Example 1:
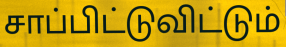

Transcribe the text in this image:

சாப்பிட்டுவிட்டும்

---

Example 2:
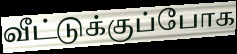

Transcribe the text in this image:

வீட்டுக்குப்போக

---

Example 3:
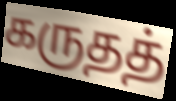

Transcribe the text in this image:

கருதத்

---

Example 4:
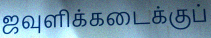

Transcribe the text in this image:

ஜவுளிக்கடைக்குப்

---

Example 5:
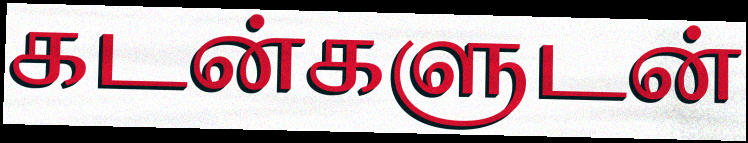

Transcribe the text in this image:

கடன்களுடன்